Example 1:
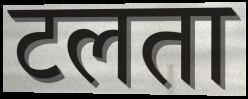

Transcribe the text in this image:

टलता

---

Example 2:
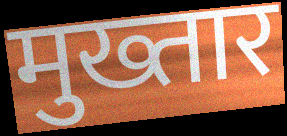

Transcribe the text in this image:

मुख्‍तार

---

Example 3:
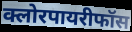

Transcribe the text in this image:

क्लोरपायरीफॉस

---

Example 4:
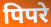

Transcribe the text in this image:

पिपरे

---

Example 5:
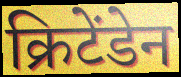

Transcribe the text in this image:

क्रिटेंडेन